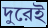
দুরেই